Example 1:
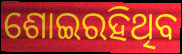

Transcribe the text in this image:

ଶୋଇରହିଥିବ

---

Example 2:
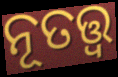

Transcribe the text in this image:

ନୂତତ୍ତ୍ବ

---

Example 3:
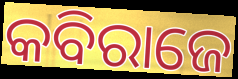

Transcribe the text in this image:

କବିରାଜେ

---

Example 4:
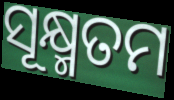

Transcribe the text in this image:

ସୂକ୍ଷ୍ମତମ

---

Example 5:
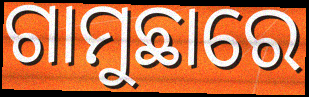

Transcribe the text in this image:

ଗାମୁଛାରେ